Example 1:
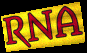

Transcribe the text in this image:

RNA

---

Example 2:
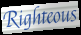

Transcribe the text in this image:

Righteous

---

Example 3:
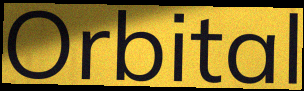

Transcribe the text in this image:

Orbital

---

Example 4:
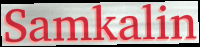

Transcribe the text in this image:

Samkalin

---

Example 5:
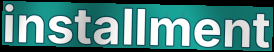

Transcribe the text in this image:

installment